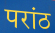
परांठ